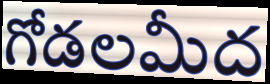
గోడలమీద